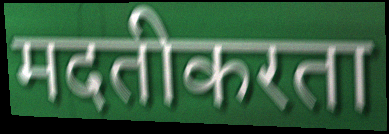
मदतीकरता